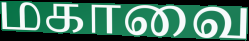
மகாவை